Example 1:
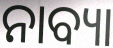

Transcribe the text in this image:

ନାବ୍ୟା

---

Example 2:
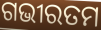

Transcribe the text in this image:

ଗଭୀରତମ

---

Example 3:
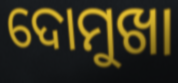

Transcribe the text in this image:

ଦୋମୁଖା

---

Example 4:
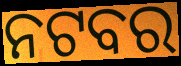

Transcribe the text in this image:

ନଟବର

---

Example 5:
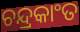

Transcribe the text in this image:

ଚନ୍ଦ୍ରକାଂତ